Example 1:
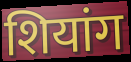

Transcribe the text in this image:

शियांग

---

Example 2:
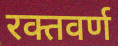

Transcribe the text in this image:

रक्तवर्ण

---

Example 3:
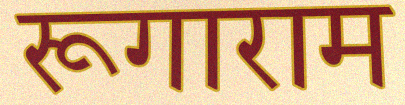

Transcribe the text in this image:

रूगाराम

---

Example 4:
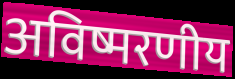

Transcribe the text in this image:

अविष्मरणीय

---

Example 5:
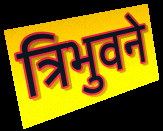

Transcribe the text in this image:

त्रिभुवने